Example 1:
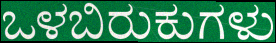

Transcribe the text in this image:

ಒಳಬಿರುಕುಗಳು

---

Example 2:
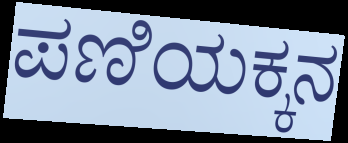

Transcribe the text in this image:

ಪಣಿಯಕ್ಕನ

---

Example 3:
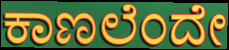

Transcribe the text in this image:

ಕಾಣಲೆಂದೇ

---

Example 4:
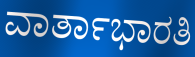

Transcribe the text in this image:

ವಾರ್ತಾಭಾರತಿ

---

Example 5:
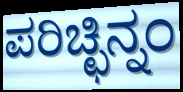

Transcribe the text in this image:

ಪರಿಚ್ಛಿನ್ನಂ